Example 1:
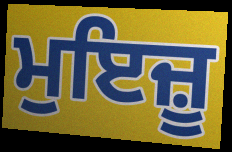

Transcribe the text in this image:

ਮੁਇਜ਼ੂ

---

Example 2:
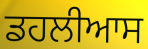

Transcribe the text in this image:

ਡਹਲੀਆਸ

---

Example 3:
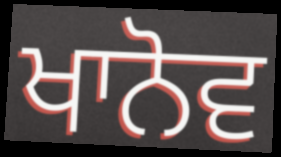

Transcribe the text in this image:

ਖਾਨੋਵ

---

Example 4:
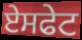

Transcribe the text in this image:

ਏਸਫੇਟ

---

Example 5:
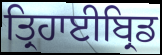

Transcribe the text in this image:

ਤ੍ਰਿਹਾਈਬ੍ਰਿਡ